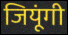
जियूंगी